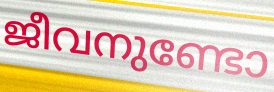
ജീവനുണ്ടോ